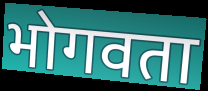
भोगवता